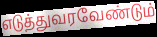
எடுத்துவரவேண்டும்